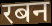
रबन